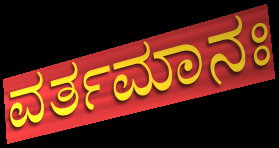
ವರ್ತಮಾನಃ